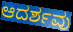
ಆದರ್ಶವು